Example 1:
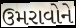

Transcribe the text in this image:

ઉમરાવોને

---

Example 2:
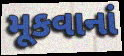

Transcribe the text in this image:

મૂકવાનાં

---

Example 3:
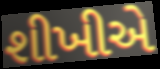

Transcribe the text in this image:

શીખીએ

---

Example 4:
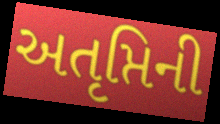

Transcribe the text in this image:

અતૃપ્તિની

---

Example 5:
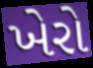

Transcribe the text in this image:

ખેરો